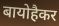
बायोहैकर